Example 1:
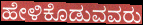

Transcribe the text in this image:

ಹೇಳಿಕೊಡುವವರು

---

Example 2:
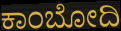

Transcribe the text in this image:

ಕಾಂಬೋದಿ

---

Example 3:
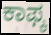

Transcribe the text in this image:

ಕಾಫ್ಕ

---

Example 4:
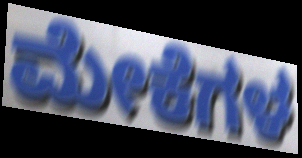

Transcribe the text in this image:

ಮೇಕೆಗಳ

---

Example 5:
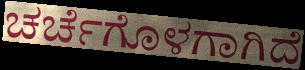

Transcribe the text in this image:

ಚರ್ಚೆಗೊಳಗಾಗಿದೆ